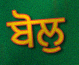
ਬੋਲੁ